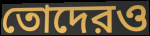
তোদেরও